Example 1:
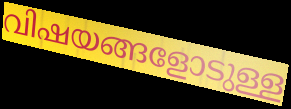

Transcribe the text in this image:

വിഷയങ്ങളോടുള്ള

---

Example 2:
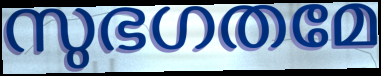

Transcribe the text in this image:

സുഭഗതമേ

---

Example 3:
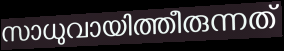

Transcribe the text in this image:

സാധുവായിത്തീരുന്നത്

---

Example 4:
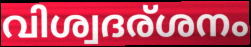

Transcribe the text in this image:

വിശ്വദര്ശനം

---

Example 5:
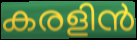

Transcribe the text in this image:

കരളിൻ